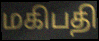
மகிபதி